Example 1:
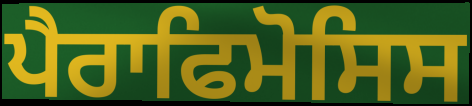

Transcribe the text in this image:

ਪੈਰਾਫਿਮੋਸਿਸ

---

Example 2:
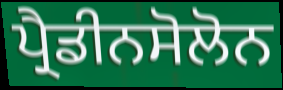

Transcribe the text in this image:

ਪ੍ਰੈਡੀਨਸੋਲੋਨ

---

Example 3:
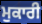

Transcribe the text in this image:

ਮੁਕਾਰੀ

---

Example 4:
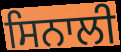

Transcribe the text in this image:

ਸਿਨਾਲੀ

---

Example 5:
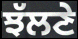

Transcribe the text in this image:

ਝੱਲਣੇ